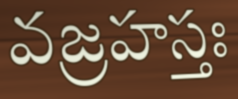
వజ్రహస్తః